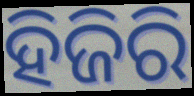
ହିଜିରି